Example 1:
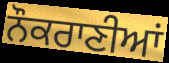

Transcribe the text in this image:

ਨੌਕਰਾਣੀਆਂ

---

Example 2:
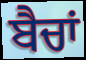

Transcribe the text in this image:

ਬੈਚਾਂ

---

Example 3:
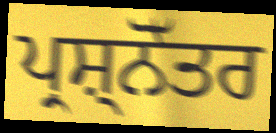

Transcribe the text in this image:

ਪ੍ਰਸ਼੍ਨੋੱਤਰ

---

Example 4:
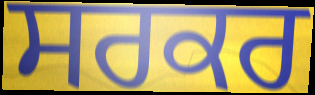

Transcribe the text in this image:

ਸਰਕਰ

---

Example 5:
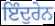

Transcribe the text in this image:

ਇੰਦੁਰੇਨ